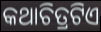
କଥାଚିତ୍ରଟିଏ